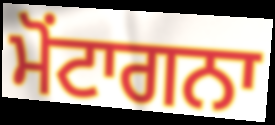
ਮੋਂਟਾਗਨਾ